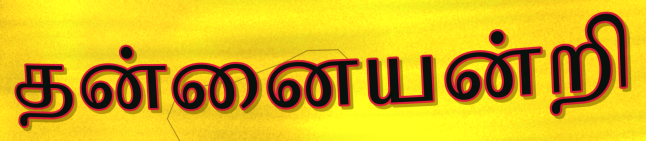
தன்னையன்றி